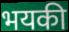
भयकी